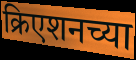
क्रिएशनच्या